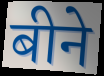
बीने